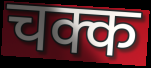
चक्क